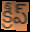
క్రీప్